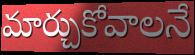
మార్చుకోవాలనే